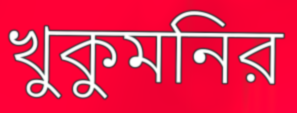
খুকুমনির